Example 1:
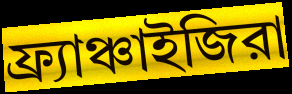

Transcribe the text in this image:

ফ্র্যাঞ্চাইজিরা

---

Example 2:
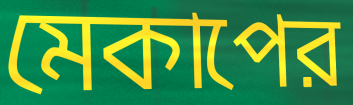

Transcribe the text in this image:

মেকাপের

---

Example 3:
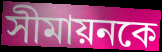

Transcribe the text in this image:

সীমায়নকে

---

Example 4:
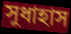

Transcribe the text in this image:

সুধাহাস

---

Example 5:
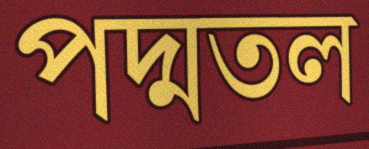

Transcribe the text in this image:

পদ্মতল